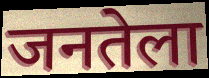
जनतेला